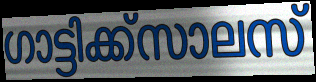
ഗാട്ടിക്ക്സാലസ്